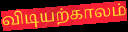
விடியற்காலம்